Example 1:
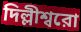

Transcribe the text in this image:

দিল্লীশ্বরো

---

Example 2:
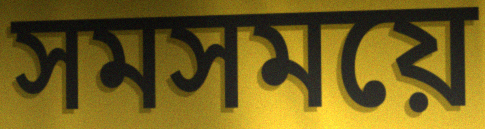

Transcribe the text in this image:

সমসময়ে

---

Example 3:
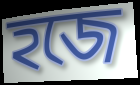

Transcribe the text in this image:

হজে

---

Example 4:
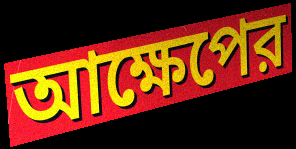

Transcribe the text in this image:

আক্ষেপের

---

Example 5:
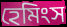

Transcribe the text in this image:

হেমিংস